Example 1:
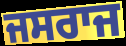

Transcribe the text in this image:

ਜਸਰਾਜ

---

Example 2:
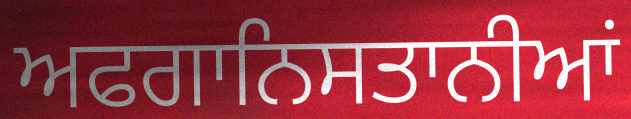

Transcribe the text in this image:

ਅਫਗਾਨਿਸਤਾਨੀਆਂ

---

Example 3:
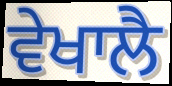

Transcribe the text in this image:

ਵੇਖਾਲੈ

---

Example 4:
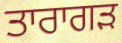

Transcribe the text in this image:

ਤਾਰਾਗੜ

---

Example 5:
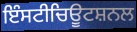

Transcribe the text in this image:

ਇੰਸਟੀਚਿਊਟਸ਼ਨਲ